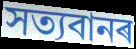
সত্যবানৰ